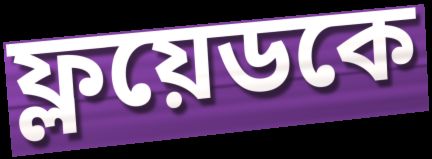
ফ্লয়েডকে